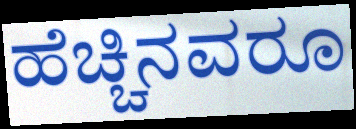
ಹೆಚ್ಚಿನವರೂ